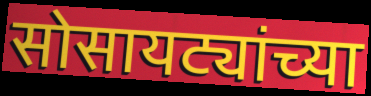
सोसायट्यांच्या